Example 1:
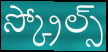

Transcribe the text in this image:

స్క్రోల్స్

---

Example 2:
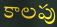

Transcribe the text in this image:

కాలపు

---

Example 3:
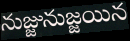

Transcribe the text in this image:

నుజ్జునుజ్జయిన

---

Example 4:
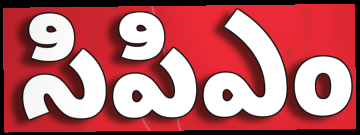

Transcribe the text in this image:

సిపిఎం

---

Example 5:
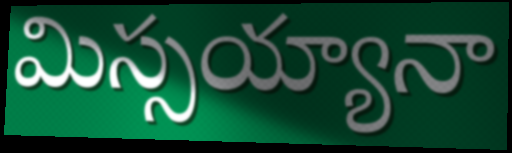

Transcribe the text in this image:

మిస్సయ్యానా